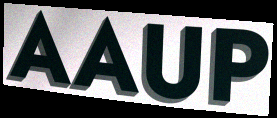
AAUP